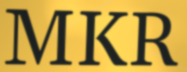
MKR